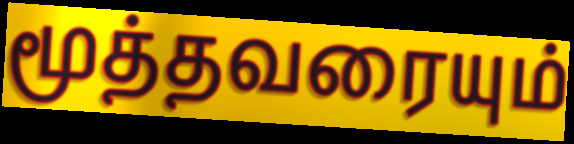
மூத்தவரையும்